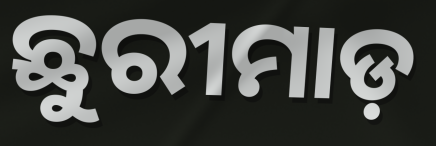
ଛୁରୀମାଡ଼